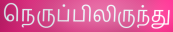
நெருப்பிலிருந்து